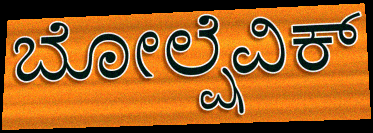
ಬೋಲ್ಷೆವಿಕ್